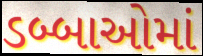
ડબ્બાઓમાં